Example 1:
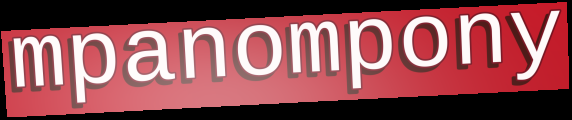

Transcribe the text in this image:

mpanompony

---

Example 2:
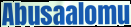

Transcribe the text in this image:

Abusaalomu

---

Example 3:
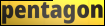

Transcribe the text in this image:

pentagon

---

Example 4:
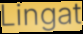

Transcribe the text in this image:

Lingat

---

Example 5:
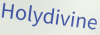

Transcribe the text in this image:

Holydivine